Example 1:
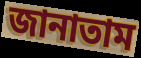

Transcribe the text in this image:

জানাতাম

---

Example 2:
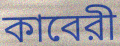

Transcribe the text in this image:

কাবেরী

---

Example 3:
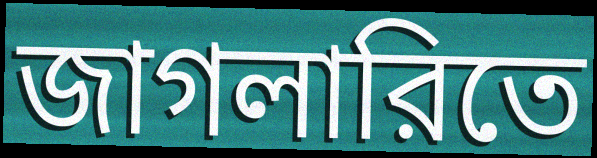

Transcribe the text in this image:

জাগলারিতে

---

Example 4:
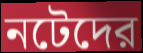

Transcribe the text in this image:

নটেদের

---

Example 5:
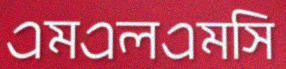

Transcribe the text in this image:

এমএলএমসি